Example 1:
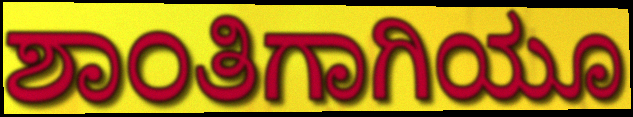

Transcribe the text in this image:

ಶಾಂತಿಗಾಗಿಯೂ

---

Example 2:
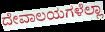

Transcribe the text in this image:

ದೇವಾಲಯಗಳೆಲ್ಲಾ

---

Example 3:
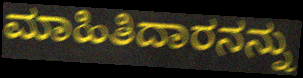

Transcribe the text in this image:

ಮಾಹಿತಿದಾರನನ್ನು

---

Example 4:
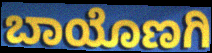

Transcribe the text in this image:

ಬಾಯೊಣಗಿ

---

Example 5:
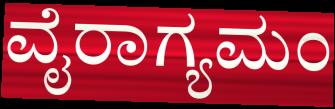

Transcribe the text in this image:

ವೈರಾಗ್ಯಮಂ